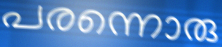
പരന്നൊരു